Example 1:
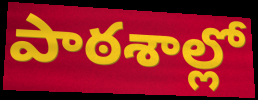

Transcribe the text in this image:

పాఠశాల్లో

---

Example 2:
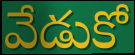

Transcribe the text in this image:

వేడుకో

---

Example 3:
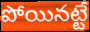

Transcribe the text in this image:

పోయినట్టే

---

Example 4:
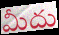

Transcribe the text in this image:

మీదు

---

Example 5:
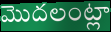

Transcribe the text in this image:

మొదలంట్లా